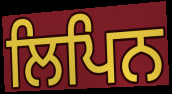
ਲਿਪਿਨ